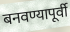
बनवण्यापूर्वी